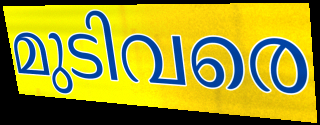
മുടിവരെ